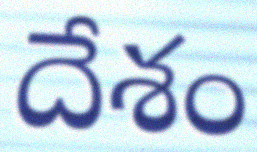
దేశం